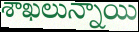
శాఖలున్నాయి